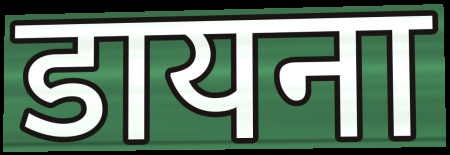
डायना